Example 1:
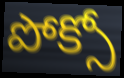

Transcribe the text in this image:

పోక్సో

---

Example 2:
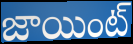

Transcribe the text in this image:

జాయింట్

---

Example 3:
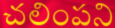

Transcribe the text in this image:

చలింపని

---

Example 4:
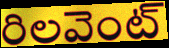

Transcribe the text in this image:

రిలవెంట్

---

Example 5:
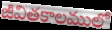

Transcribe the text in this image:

జీవితకాలములో